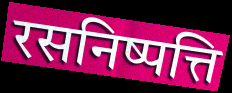
रसनिष्पत्ति